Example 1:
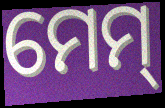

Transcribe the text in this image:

ମେମ୍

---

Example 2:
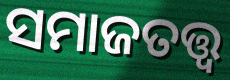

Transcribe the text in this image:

ସମାଜତତ୍ତ୍ବ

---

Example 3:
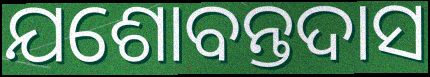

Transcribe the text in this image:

ଯଶୋବନ୍ତଦାସ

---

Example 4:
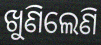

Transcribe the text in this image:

ଖୁଣିଲେଣି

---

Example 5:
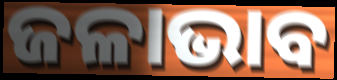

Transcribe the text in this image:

ଜଳାଭାବ